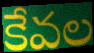
కేవల